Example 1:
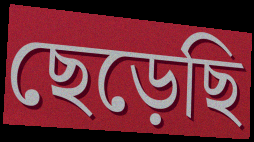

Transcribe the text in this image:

ছেড়েছি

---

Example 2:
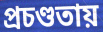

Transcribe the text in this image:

প্রচণ্ডতায়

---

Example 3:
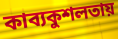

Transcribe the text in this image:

কাব্যকুশলতায়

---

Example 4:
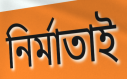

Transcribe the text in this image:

নির্মাতাই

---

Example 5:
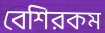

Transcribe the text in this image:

বেশিরকম